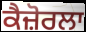
ਕੈਜ਼ੋਰਲਾ